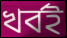
খর্বই